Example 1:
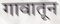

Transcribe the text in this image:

गावातून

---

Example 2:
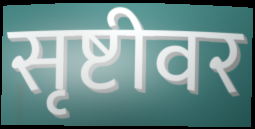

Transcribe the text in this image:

सृष्टीवर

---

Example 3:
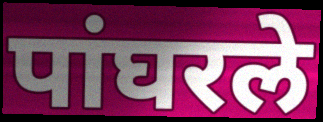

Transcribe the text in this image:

पांघरले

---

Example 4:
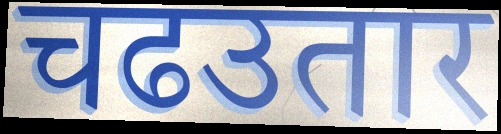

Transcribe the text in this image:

चढउतार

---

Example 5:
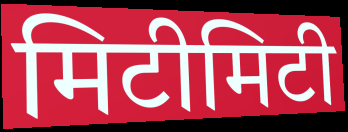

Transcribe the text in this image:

मिटीमिटी